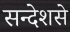
सन्देशसे